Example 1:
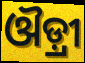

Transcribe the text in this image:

ଔଡ଼୍ରୀ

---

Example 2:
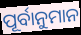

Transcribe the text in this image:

ପୂର୍ବାନୁମାନ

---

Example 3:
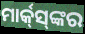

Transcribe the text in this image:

ମାର୍କ୍‌ସ୍‌ଙ୍କର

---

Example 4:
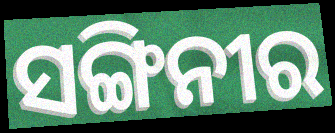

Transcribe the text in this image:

ସଙ୍ଗିନୀର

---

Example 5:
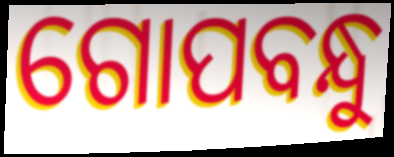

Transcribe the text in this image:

ଗୋପବନ୍ଧୁ